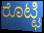
ರೊಟ್ಟಿ